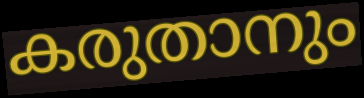
കരുതാനും